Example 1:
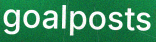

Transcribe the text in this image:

goalposts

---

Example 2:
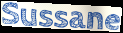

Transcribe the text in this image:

Sussane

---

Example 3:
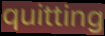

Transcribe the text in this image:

quitting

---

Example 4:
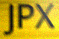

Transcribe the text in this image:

JPX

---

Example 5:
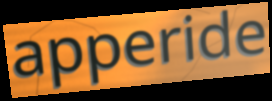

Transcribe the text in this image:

apperide